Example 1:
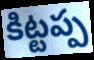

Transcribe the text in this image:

కిట్టప్ప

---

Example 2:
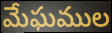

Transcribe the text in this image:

మేఘముల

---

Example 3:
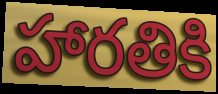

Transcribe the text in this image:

హారతికి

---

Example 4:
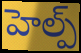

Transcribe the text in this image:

హెల్ప్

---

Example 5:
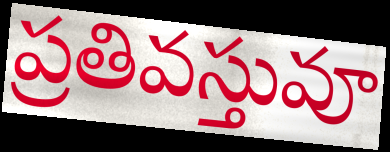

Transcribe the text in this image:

ప్రతివస్తువూ